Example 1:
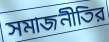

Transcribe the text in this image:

সমাজনীতির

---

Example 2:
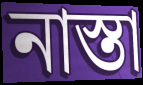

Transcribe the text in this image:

নাস্তা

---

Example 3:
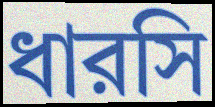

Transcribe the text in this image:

ধারসি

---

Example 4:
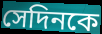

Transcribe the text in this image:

সেদিনকে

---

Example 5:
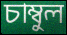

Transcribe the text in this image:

চাম্বুল